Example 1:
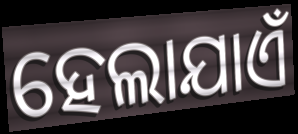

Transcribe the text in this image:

ହେଲାଯାଏଁ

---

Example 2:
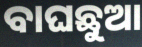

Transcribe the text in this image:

ବାଘଛୁଆ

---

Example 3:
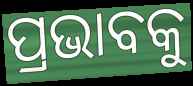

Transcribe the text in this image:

ପ୍ରଭାବକୁ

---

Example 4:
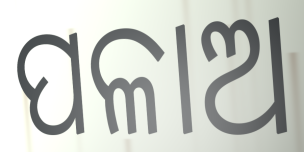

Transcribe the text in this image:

ପଳାଅ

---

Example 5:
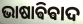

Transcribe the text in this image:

ଭାଷାଵିଵାଦ